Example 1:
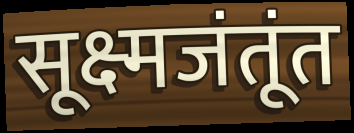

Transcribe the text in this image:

सूक्ष्मजंतूंत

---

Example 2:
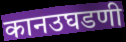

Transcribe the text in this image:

कानउघडणी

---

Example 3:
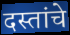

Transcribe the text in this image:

दस्तांचे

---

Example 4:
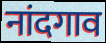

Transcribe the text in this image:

नांदगाव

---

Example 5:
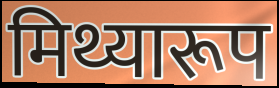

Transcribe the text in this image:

मिथ्यारूप